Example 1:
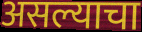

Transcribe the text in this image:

असल्‍याचा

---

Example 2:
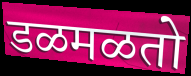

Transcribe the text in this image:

डळमळतो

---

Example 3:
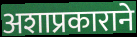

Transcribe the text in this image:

अशाप्रकाराने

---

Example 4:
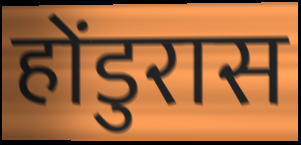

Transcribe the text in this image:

होंडुरास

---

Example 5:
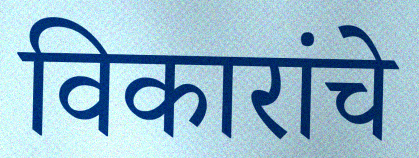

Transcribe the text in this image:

विकारांचे